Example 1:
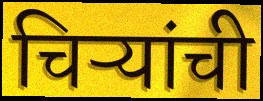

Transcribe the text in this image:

चिऱ्यांची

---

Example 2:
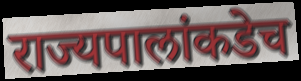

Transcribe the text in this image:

राज्यपालांकडेच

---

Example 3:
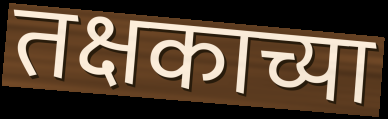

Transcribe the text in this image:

तक्षकाच्या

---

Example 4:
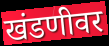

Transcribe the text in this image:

खंडणीवर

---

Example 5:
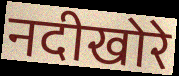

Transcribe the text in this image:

नदीखोरे